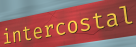
intercostal